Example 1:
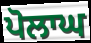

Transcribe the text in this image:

ਪੋਲਾਘ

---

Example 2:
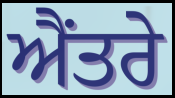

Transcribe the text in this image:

ਐਂਤਰੇ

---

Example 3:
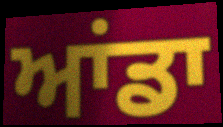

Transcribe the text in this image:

ਆਂਡਾ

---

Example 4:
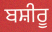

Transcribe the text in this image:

ਬਸ਼ੀਰੂ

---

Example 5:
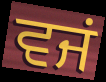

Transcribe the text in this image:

ਵਜਂ